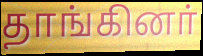
தாங்கினர்